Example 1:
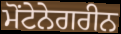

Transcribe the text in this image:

ਮੋਂਟੇਨੇਗਰੀਨ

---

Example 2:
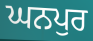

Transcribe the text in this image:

ਘਨਪੁਰ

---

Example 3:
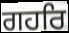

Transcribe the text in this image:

ਗਹਰਿ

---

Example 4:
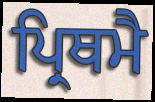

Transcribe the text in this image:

ਪ੍ਰਿਥਮੈ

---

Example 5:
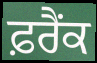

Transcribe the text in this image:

ਫ਼ਰੈਂਕ